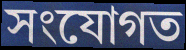
সংযোগত